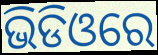
ଭିଡିଓରେ